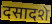
दसादशे